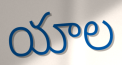
యాల